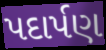
પદાર્પણ